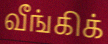
வீங்கிக்